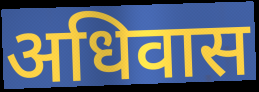
अधिवास